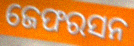
ଜେଫରସନ